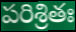
పరిశ్రితః